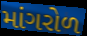
માંગરોળ